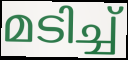
മടിച്ച്